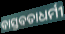
ବାସ୍ତବତାଧର୍ମୀ